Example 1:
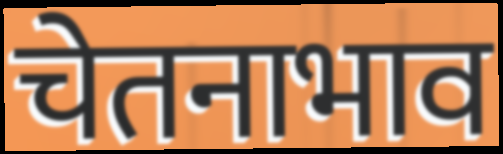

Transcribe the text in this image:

चेतनाभाव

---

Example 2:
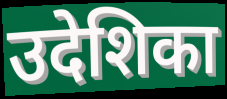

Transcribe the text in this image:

उदेशिका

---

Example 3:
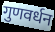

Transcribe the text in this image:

गुणवर्धन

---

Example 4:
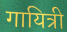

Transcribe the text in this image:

गायित्री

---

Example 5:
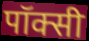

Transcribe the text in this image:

पॉक्सी